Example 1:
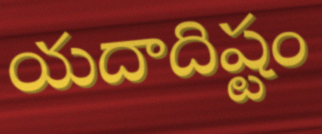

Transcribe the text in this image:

యదాదిష్టం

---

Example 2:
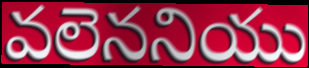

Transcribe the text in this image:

వలెననియు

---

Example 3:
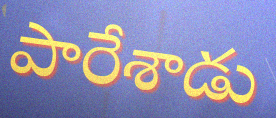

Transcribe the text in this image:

పారేశాడు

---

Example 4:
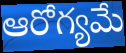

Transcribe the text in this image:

ఆరోగ్యమే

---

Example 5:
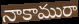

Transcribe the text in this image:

నాకామురా